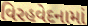
વિરહવેદનામાં